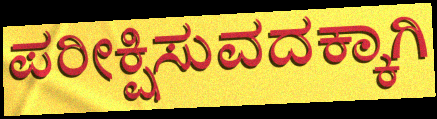
ಪರೀಕ್ಷಿಸುವದಕ್ಕಾಗಿ